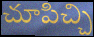
చూపిచ్చి